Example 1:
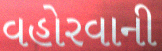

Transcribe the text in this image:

વહોરવાની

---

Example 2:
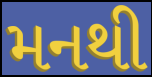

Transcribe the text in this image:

મનથી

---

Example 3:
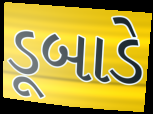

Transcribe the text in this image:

ડૂબાડે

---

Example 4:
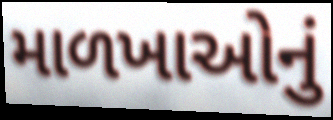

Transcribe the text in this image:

માળખાઓનું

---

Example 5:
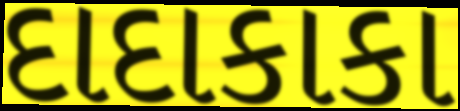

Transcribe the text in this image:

દાદાકાકા